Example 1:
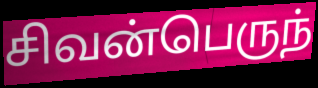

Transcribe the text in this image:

சிவன்பெருந்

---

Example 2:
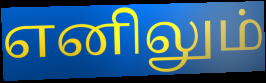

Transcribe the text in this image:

எனிலும்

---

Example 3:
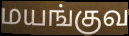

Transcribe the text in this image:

மயங்குவ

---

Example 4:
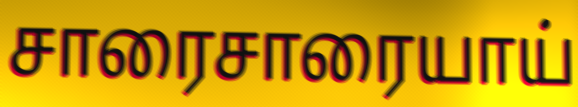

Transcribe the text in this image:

சாரைசாரையாய்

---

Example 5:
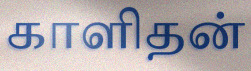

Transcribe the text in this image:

காளிதன்